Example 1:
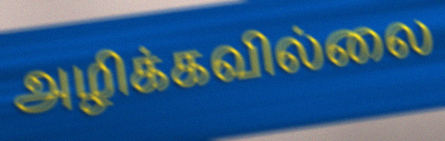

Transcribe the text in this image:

அழிக்கவில்லை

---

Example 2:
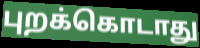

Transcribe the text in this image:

புறக்கொடாது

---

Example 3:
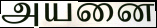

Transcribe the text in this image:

அயனை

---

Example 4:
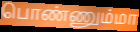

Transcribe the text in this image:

பொண்ணும்மா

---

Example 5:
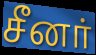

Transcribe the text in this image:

சீனர்